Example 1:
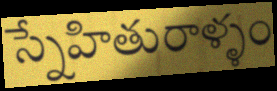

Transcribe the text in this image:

స్నేహితురాళ్ళం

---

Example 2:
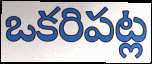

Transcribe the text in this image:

ఒకరిపట్ల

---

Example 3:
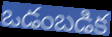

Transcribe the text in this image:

ఒడంబడిక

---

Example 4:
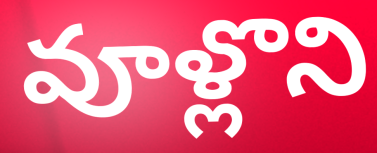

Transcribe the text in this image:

వూళ్లొని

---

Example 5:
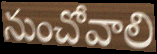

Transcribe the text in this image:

నుంచోవాలి